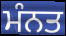
ਮੰਨਤ